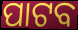
ପାଟବ